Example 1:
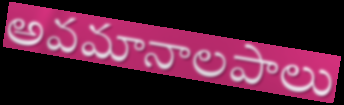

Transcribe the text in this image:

అవమానాలపాలు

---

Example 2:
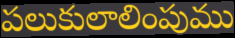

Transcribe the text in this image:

పలుకులాలింపుము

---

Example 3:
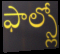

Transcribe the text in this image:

ఫాల్స్లో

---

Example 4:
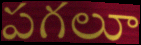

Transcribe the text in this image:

పగలూ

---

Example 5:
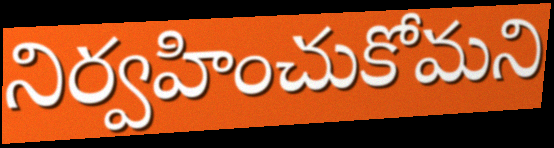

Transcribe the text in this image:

నిర్వహించుకోమని